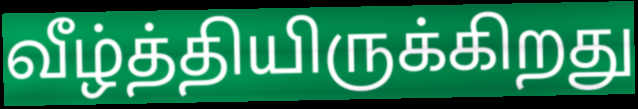
வீழ்த்தியிருக்கிறது